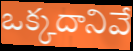
ఒక్కదానివే